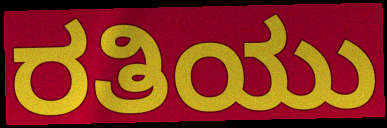
ರತಿಯು